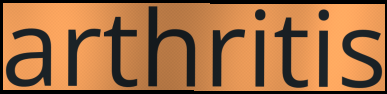
arthritis